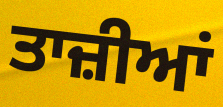
ਤਾਜ਼ੀਆਂ